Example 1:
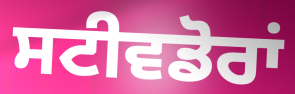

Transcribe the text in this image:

ਸਟੀਵਡੋਰਾਂ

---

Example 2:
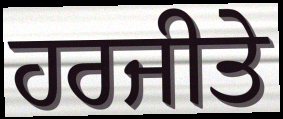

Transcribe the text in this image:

ਹਰਜੀਤੇ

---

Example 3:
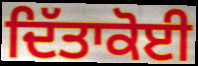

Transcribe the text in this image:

ਦਿੱਤਾਕੋਈ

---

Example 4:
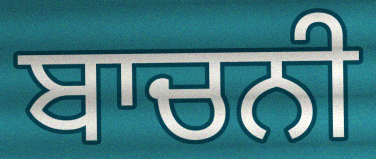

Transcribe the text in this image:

ਬਾਚਨੀ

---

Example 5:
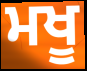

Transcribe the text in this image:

ਮਖੂ